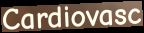
Cardiovasc